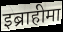
इब्राहीमा